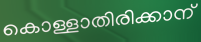
കൊള്ളാതിരിക്കാന്